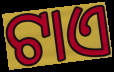
ଟାଏ